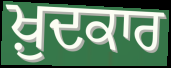
ਖ਼ੁਦਕਾਰ